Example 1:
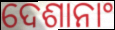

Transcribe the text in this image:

ଦେଶାନାଂ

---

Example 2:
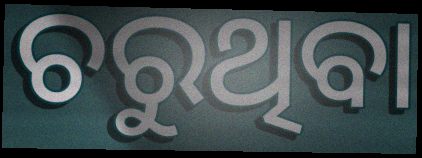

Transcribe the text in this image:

ଚରୁଥିବା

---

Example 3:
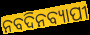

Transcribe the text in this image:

ନବଦିନବ୍ୟାପୀ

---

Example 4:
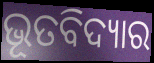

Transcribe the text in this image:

ଭୂତବିଦ୍ୟାର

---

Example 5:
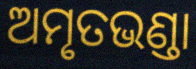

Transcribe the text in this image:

ଅମୃତଭଣ୍ଡା